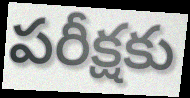
పరీక్షకు